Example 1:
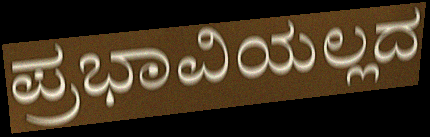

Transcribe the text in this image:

ಪ್ರಭಾವಿಯಲ್ಲದ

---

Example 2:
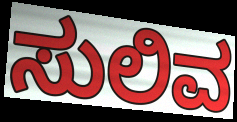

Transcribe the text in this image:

ಸುಲಿವ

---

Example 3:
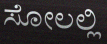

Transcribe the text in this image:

ಸೋಲಲ್ಲಿ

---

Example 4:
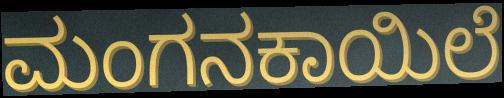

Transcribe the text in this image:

ಮಂಗನಕಾಯಿಲೆ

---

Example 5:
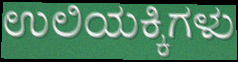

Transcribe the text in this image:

ಉಲಿಯಕ್ಕಿಗಳು